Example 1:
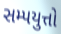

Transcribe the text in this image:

સમ્પયુત્તો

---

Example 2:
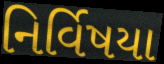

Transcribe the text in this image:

નિર્વિષયા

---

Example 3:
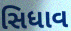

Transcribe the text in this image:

સિધાવ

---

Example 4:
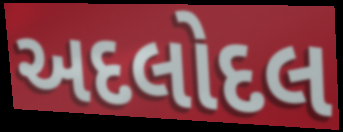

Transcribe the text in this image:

અદલોદલ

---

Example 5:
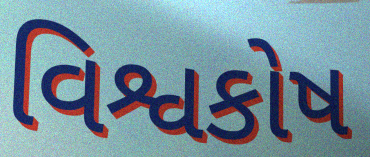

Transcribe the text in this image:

વિશ્વકોષ